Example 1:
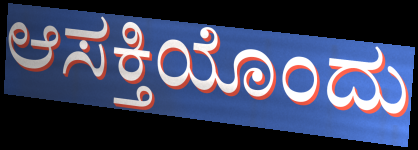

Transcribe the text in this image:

ಆಸಕ್ತಿಯೊಂದು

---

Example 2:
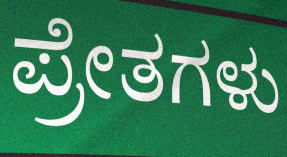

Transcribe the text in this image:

ಪ್ರೇತಗಳು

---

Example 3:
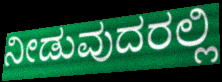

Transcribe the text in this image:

ನೀಡುವುದರಲ್ಲಿ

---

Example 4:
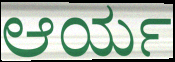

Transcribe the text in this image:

ಆರ್ಯ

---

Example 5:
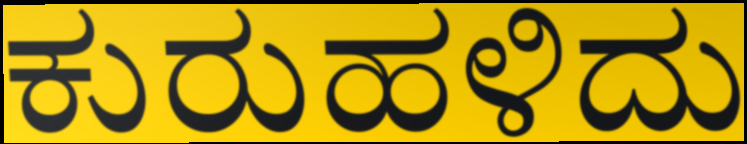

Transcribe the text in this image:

ಕುರುಹಳಿದು